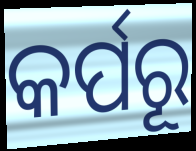
କର୍ପରୂ